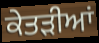
ਕੇਤੜੀਆਂ